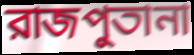
রাজপুতানা